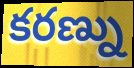
కరణ్ను